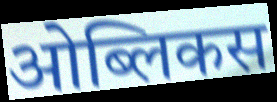
ओब्लिकस